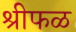
श्रीफळ